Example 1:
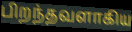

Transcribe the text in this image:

பிறந்தவளாகிய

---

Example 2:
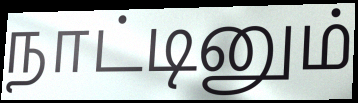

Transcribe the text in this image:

நாட்டினும்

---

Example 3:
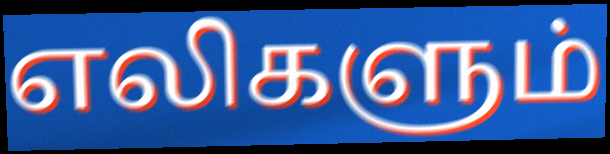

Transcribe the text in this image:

எலிகளும்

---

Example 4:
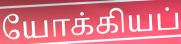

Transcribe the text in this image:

யோக்கியப்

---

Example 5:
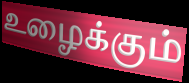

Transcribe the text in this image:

உழைக்கும்